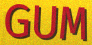
GUM